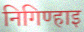
निगिण्हाइ